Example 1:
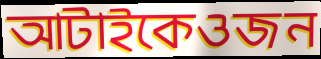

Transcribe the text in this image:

আটাইকেওজন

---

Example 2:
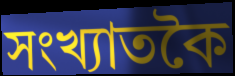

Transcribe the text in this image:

সংখ্যাতকৈ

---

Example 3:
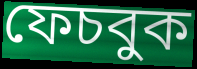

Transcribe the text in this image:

ফেচবুক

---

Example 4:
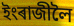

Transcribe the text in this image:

ইংৰাজীলৈ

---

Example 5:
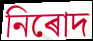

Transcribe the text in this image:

নিৰোদ